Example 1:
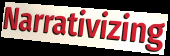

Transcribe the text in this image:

Narrativizing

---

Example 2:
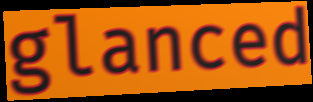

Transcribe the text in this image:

glanced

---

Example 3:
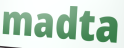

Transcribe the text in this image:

madta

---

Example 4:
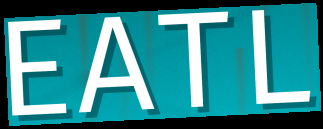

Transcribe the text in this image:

EATL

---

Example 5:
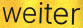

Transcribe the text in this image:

weiter